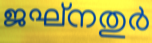
ജഘ്നതുർ